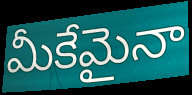
మీకేమైనా